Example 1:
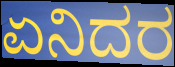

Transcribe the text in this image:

ಏನಿದರ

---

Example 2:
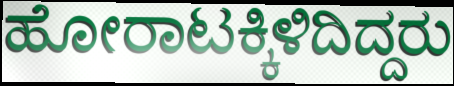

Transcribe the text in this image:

ಹೋರಾಟಕ್ಕಿಳಿದಿದ್ದರು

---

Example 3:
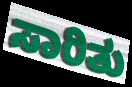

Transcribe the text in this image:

ಸಾರಿತು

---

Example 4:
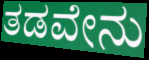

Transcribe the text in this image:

ತಡವೇನು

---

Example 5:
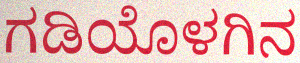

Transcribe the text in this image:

ಗಡಿಯೊಳಗಿನ